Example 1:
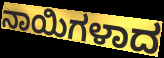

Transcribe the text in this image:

ನಾಯಿಗಳಾದ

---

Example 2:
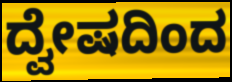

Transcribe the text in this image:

ದ್ವೇಷದಿಂದ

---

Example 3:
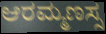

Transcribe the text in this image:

ಆರಮ್ಮಣಸ್ಸ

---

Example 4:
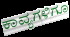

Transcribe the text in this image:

ಕಾವ್ಯಗಳಿಗೂ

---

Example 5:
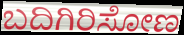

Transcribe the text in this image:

ಬದಿಗಿರಿಸೋಣ